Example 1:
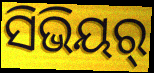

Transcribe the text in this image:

ସିଭିୟର୍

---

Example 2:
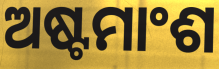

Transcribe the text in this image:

ଅଷ୍ଟମାଂଶ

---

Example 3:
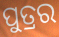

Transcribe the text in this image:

ପୁତ୍ରର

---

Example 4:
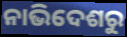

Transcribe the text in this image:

ନାଭିଦେଶରୁ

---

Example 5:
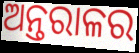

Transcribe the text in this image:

ଅନ୍ତରାଳର